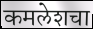
कमलेशचा